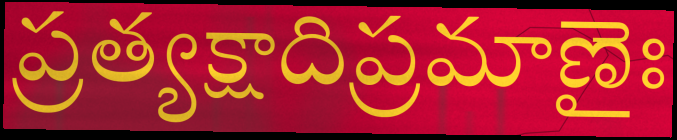
ప్రత్యక్షాదిప్రమాణైః